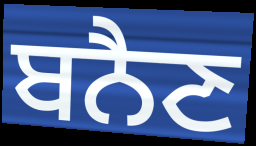
ਬਨੈਣ